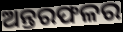
ଅନ୍ତରଫଳର